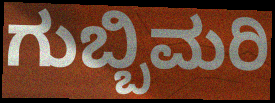
ಗುಬ್ಬಿಮರಿ